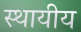
स्थायीय